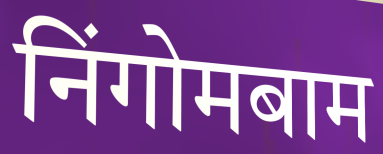
निंगोमबाम